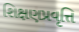
શિક્ષણપ્રવૃત્તિ